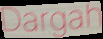
Dargah